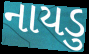
નાયડુ